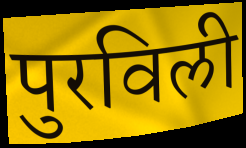
पुरविली